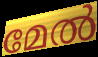
മേൽ